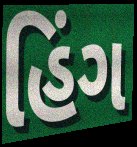
હિંગ